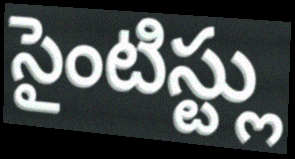
సైంటిస్ట్లు